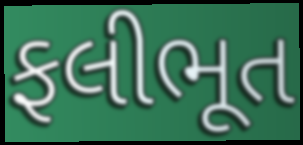
ફલીભૂત